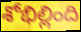
శోభిల్లింది